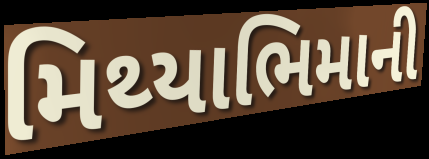
મિથ્યાભિમાની